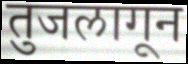
तुजलागून